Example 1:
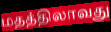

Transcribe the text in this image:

மதத்திலாவது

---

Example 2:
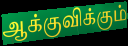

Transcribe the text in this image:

ஆக்குவிக்கும்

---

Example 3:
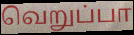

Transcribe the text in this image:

வெறுப்பா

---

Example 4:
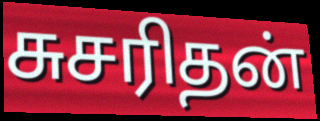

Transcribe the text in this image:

சுசரிதன்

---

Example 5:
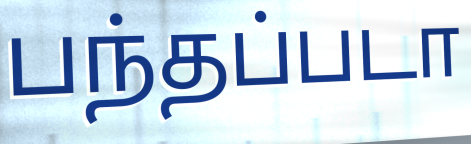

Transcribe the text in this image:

பந்தப்படா